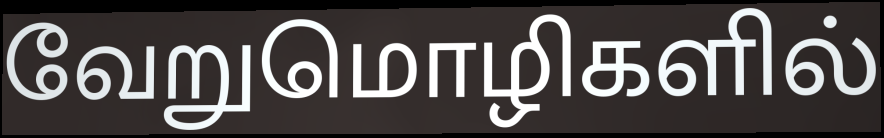
வேறுமொழிகளில்